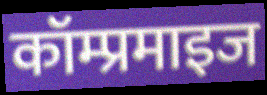
कॉम्प्रमाइज